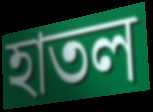
হাতল